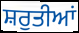
ਸ਼ਰੁਤੀਆਂ